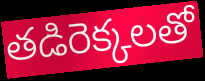
తడిరెక్కలతో